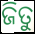
ଜିତୁ